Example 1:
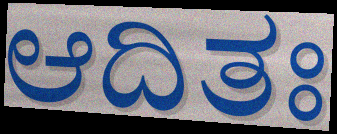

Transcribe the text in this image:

ಆದಿತಃ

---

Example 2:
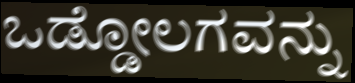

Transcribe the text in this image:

ಒಡ್ಡೋಲಗವನ್ನು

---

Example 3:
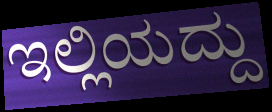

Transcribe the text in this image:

ಇಲ್ಲಿಯದ್ದು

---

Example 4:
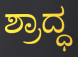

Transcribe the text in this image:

ಶ್ರಾದ್ಧ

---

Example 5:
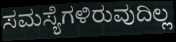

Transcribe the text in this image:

ಸಮಸ್ಯೆಗಳಿರುವುದಿಲ್ಲ